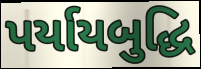
પર્યાયબુદ્ધિ